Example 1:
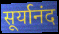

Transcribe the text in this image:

सूर्यानंद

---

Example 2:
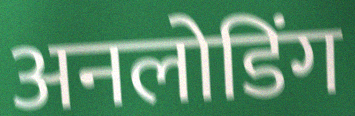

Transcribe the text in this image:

अनलोडिंग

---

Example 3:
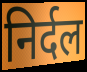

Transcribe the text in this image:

निर्दल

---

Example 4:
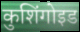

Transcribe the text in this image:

कुशिंगोइड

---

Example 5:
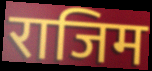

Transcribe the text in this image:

राजिम